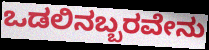
ಒಡಲಿನಬ್ಬರವೇನು